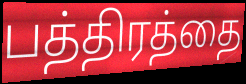
பத்திரத்தை